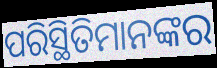
ପରିସ୍ଥିତିମାନଙ୍କର